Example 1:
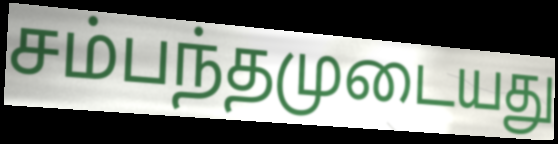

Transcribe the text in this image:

சம்பந்தமுடையது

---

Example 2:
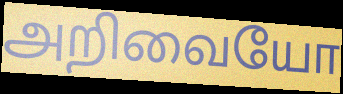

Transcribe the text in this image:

அறிவையோ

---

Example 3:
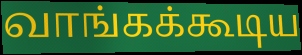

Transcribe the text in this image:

வாங்கக்கூடிய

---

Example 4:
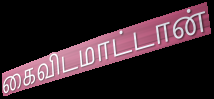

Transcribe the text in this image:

கைவிடமாட்டான்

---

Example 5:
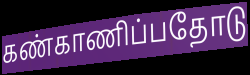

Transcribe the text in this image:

கண்காணிப்பதோடு